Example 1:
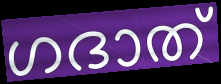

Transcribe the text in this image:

ഗദാത്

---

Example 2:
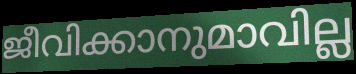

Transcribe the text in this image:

ജീവിക്കാനുമാവില്ല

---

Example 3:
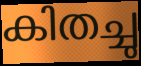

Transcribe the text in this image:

കിതച്ചു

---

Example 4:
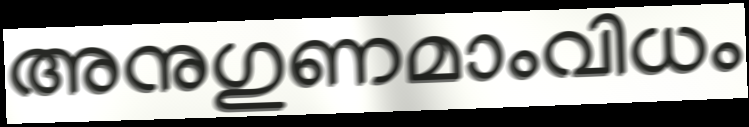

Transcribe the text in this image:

അനുഗുണമാംവിധം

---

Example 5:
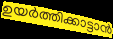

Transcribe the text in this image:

ഉയർത്തിക്കാട്ടാൻ